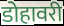
डोहावरी